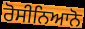
ਰੋਸੀਨਿਆਨੋ